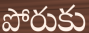
పోరుకు